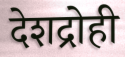
देशद्रोही